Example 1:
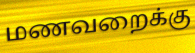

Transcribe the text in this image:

மணவறைக்கு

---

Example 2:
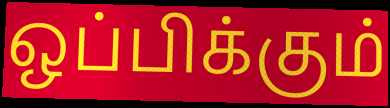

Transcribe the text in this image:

ஒப்பிக்கும்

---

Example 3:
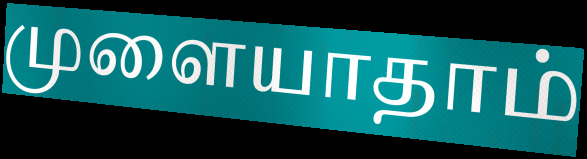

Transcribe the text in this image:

முளையாதாம்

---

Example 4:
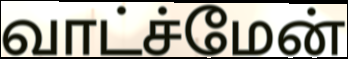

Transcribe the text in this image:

வாட்ச்மேன்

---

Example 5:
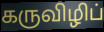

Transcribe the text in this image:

கருவிழிப்